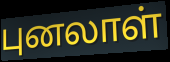
புனலாள்